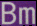
Bm